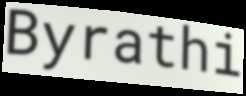
Byrathi